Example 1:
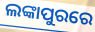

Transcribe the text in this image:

ଲଙ୍କାପୁରରେ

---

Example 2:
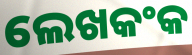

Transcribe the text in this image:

ଲେଖକଂକ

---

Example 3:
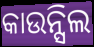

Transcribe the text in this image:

କାଉନ୍ସିଲ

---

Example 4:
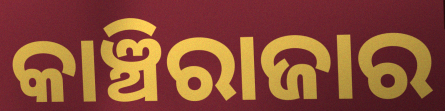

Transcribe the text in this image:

କାଞ୍ଚିରାଜାର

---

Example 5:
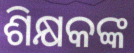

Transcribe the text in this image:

ଶିକ୍ଷକଙ୍କ